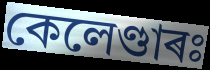
কেলেণ্ডাৰঃ